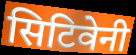
सिटिवेनी